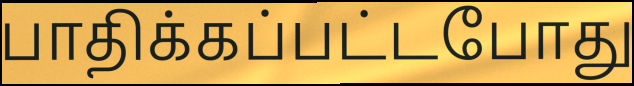
பாதிக்கப்பட்டபோது